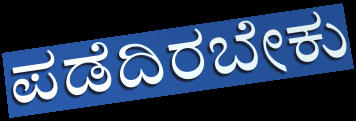
ಪಡೆದಿರಬೇಕು